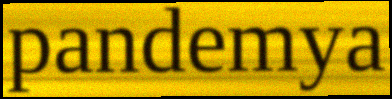
pandemya